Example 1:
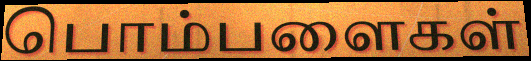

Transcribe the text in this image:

பொம்பளைகள்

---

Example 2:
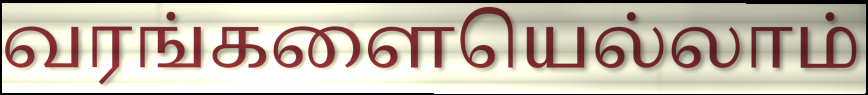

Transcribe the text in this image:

வரங்களையெல்லாம்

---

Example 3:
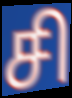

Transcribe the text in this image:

சி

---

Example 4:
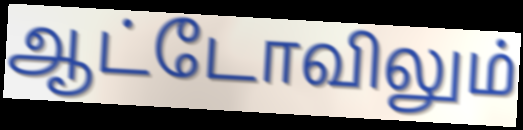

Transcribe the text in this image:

ஆட்டோவிலும்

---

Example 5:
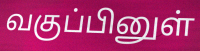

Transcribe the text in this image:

வகுப்பினுள்